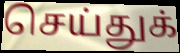
செய்துக்